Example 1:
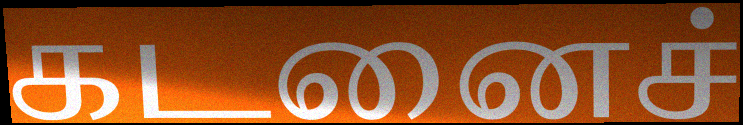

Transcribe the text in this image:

கடனைச்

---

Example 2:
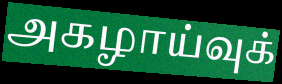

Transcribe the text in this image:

அகழாய்வுக்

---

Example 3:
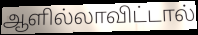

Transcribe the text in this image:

ஆளில்லாவிட்டால்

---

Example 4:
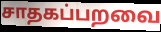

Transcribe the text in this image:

சாதகப்பறவை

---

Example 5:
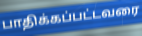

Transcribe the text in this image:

பாதிக்கப்பட்டவரை